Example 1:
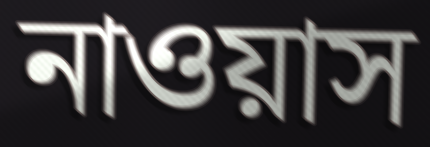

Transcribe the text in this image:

নাওয়াস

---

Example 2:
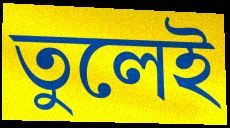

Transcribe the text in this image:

তুলেই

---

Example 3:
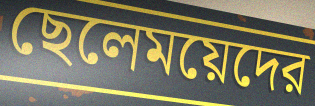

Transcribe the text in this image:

ছেলেময়েদের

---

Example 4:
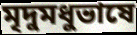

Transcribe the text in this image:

মৃদুমধুভাষে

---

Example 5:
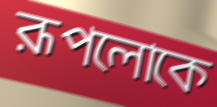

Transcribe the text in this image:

রূপলোকে